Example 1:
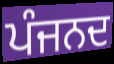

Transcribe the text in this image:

ਪੰਜਨਦ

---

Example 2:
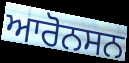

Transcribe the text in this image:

ਆਰੋਨਸਨ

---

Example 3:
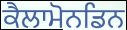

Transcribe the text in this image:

ਕੈਲਾਮੋਨਡਿਨ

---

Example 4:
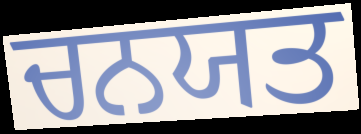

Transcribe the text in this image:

ਚਨਯਤ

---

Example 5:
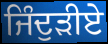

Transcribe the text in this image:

ਜਿੰਦੁੜੀਏ